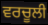
ਵਰਚੂਲੀ